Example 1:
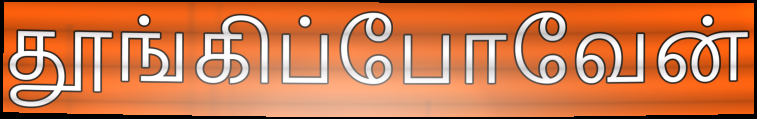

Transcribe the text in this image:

தூங்கிப்போவேன்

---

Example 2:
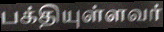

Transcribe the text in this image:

பக்தியுள்ளவர்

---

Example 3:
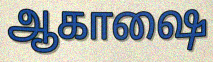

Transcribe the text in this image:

ஆகாஷை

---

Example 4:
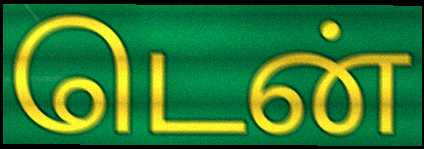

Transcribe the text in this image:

டென்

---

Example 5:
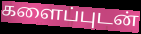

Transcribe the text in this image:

களைப்புடன்